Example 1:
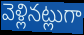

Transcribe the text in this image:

వెళ్లినట్లుగా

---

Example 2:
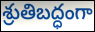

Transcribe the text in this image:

శ్రుతిబద్ధంగా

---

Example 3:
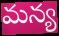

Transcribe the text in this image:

మన్య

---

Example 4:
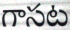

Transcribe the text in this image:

గాసట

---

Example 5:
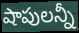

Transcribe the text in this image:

షాపులన్నీ